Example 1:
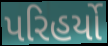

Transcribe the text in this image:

પરિહર્યો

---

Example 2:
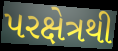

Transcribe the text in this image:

પરક્ષેત્રથી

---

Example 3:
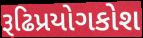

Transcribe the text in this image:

રૂઢિપ્રયોગકોશ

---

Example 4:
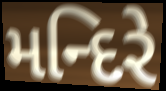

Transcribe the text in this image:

મન્દિરે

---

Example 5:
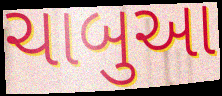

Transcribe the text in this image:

ચાબુઆ